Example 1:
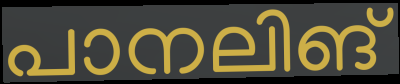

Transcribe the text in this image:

പാനലിങ്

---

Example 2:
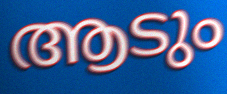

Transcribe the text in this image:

ആടും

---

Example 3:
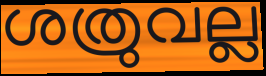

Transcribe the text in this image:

ശത്രുവല്ല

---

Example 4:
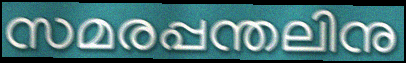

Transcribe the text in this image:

സമരപ്പന്തലിനു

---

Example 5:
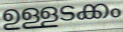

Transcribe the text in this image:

ഉള്ളടക്കം